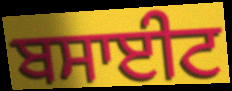
ਬਸਾਈਟ